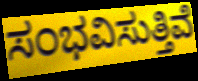
ಸಂಭವಿಸುತ್ತಿವೆ